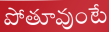
పోతూవుంటే